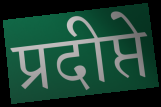
प्रदीप्ते